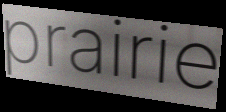
prairie